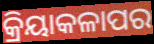
କ୍ରିୟାକଳାପର